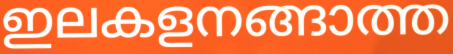
ഇലകളനങ്ങാത്ത